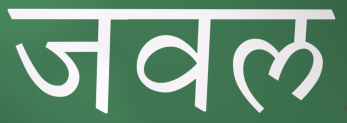
जवल